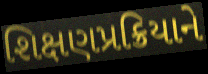
શિક્ષણપ્રક્રિયાને